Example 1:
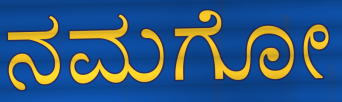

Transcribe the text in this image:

ನಮಗೋ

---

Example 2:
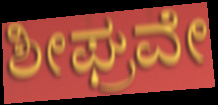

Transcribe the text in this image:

ಶೀಘ್ರವೇ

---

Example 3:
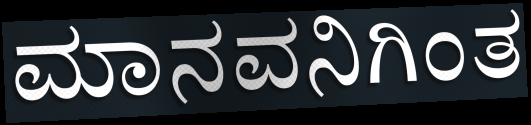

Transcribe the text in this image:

ಮಾನವನಿಗಿಂತ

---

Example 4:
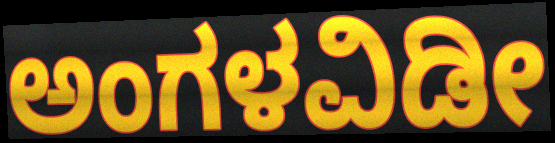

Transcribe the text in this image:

ಅಂಗಳವಿಡೀ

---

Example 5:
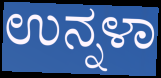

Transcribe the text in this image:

ಉನ್ನಳಾ